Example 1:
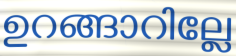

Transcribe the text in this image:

ഉറങ്ങാറില്ലേ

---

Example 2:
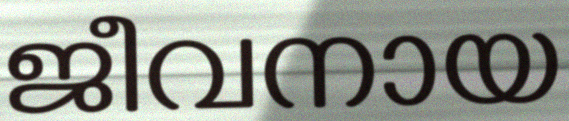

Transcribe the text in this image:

ജീവനായ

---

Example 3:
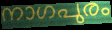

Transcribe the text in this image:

നാഗപുരം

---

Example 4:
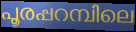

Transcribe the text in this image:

പൂരപ്പറമ്പിലെ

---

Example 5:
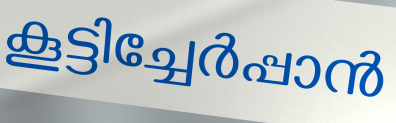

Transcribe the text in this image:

കൂട്ടിച്ചേർപ്പാൻ